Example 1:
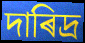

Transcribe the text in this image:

দাৰিদ্ৰ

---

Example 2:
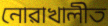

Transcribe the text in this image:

নোৱাখালীত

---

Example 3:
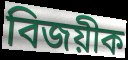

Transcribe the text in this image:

বিজয়ীক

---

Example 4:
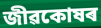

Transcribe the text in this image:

জীৱকোষৰ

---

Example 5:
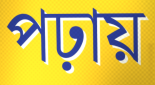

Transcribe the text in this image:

পঢ়ায়